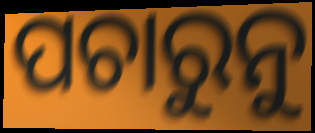
ପଚାରୁନୁ